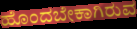
ಹೊಂದಬೇಕಾಗಿರುವ